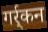
गर्र्कन